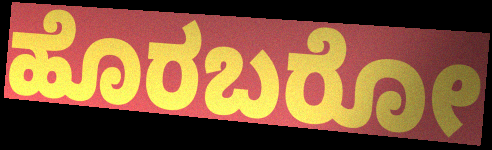
ಹೊರಬರೋ